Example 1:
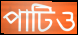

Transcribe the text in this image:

পাটিও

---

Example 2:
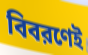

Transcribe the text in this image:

বিবরণেই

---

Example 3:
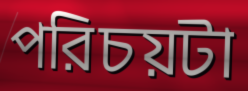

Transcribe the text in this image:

পরিচয়টা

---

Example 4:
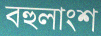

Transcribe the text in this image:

বহুলাংশ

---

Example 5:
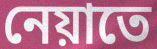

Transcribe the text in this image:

নেয়াতে